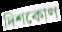
দিশকোণ